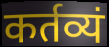
कर्तव्यं